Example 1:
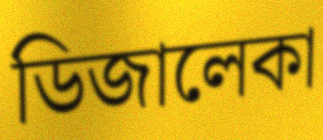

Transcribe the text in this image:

ডিজালেকা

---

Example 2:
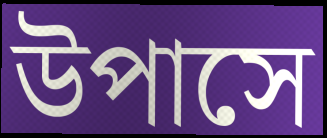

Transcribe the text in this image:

উপাসে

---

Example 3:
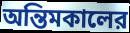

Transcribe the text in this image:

অন্তিমকালের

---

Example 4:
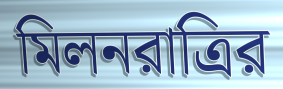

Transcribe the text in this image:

মিলনরাত্রির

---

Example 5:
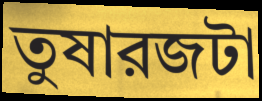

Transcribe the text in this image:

তুষারজটা